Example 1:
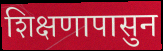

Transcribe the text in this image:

शिक्षणापासुन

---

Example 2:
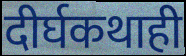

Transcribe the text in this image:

दीर्घकथाही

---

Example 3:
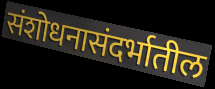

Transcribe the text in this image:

संशोधनासंदर्भातील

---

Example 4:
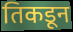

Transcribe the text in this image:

तिकडून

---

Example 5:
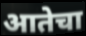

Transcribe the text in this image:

आतेचा